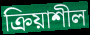
ক্রিয়াশীল